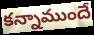
కన్నాముందే